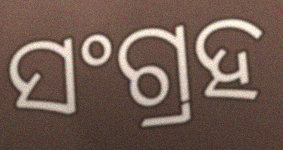
ସଂଗ୍ରହ